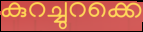
കുറച്ചുറക്കെ